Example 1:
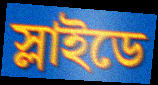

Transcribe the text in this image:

স্লাইডে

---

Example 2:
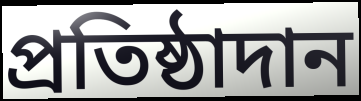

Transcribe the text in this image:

প্রতিষ্ঠাদান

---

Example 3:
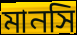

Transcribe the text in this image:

মানসি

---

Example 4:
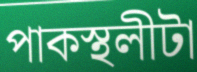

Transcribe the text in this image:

পাকস্থলীটা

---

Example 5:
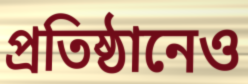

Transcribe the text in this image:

প্রতিষ্ঠানেও